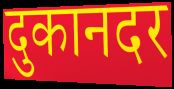
दुकानदर